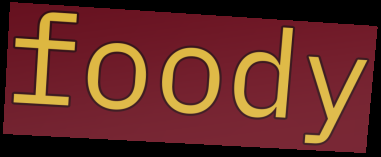
foody